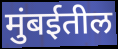
मुंबईतील